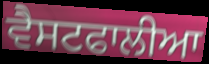
ਵੈਸਟਫਾਲੀਆ